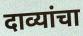
दाव्यांचा